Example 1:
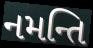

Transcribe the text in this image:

નમન્તિ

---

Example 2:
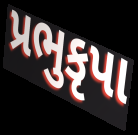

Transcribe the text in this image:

પ્રભુકૃપા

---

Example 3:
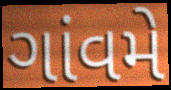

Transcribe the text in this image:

ગાંવમે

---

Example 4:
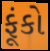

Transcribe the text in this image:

ફૂંકો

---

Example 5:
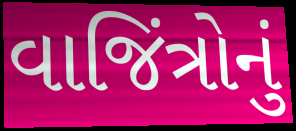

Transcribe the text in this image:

વાજિંત્રોનું